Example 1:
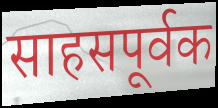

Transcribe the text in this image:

साहसपूर्वक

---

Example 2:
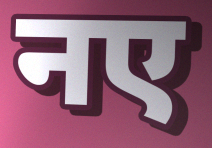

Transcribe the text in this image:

नए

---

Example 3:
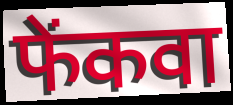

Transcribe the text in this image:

फेंकवा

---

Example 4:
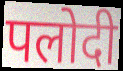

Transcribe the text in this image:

पलोदी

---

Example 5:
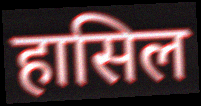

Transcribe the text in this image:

हासिल